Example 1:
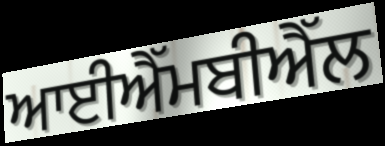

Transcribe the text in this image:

ਆਈਐੱਮਬੀਐੱਲ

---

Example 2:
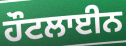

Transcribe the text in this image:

ਹੌਟਲਾਈਨ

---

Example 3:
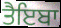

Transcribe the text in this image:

ਤੈਇਬਾ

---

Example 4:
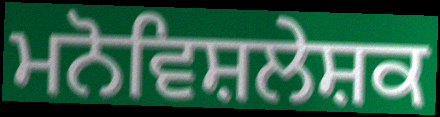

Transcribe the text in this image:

ਮਨੋਵਿਸ਼ਲੇਸ਼ਕ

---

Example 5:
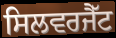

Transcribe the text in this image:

ਸਿਲਵਰਜੈੱਟ